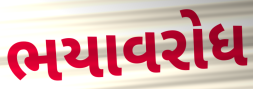
ભયાવરોધ